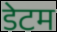
डेटम